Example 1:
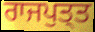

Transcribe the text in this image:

ਰਾਜਪੁਤ੍ਤ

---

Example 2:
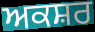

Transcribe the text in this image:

ਅਕਸ਼ਰ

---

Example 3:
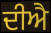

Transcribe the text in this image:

ਦੀਐ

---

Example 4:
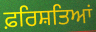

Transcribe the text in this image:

ਫ਼ਰਿਸ਼ਤਿਆਂ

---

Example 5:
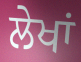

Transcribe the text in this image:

ਲੇਖਾਂ